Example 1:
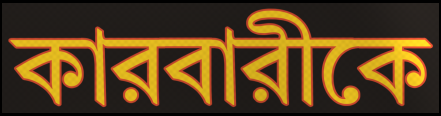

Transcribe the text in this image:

কারবারীকে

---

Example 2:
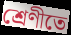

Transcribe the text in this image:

শ্রেণীতে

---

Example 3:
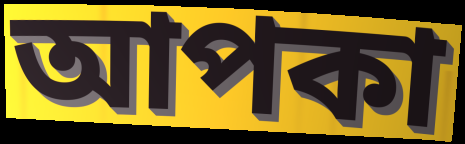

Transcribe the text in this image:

আপকা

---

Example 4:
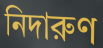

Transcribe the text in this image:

নিদারুণ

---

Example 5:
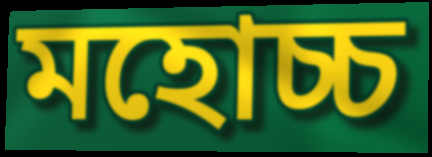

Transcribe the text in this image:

মহোচ্চ